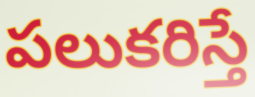
పలుకరిస్తే